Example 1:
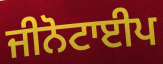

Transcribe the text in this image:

ਜੀਨੋਟਾਈਪ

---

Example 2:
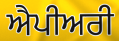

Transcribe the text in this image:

ਐਪੀਅਰੀ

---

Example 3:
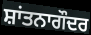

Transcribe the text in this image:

ਸ਼ਾਂਤਨਾਗੌਦਰ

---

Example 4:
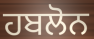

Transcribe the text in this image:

ਹਬਲੋਨ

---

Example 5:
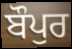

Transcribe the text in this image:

ਬੌਪੁਰ